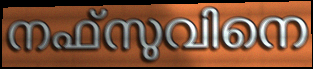
നഫ്സുവിനെ